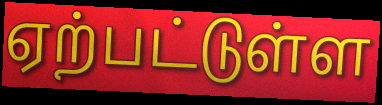
ஏற்பட்டுள்ள